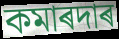
কমাৰদাৰ